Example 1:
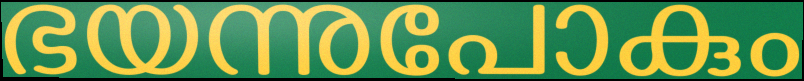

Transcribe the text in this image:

ഭയന്നുപോകും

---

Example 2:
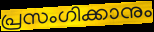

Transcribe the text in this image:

പ്രസംഗിക്കാനും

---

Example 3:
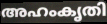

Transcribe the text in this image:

അഹംകൃതി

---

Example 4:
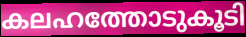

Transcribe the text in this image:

കലഹത്തോടുകൂടി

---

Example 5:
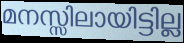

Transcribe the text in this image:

മനസ്സിലായിട്ടില്ല